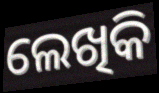
ଲେଖିକି